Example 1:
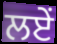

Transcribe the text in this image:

ਲਏਂ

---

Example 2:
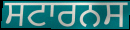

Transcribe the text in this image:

ਸਟਾਰਨਸ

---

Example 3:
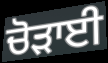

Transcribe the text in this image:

ਚੋੜਾਈ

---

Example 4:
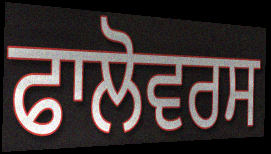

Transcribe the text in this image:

ਫਾਲੋਵਰਸ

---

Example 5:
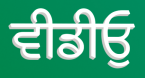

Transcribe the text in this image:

ਵੀਡੀਓੁ